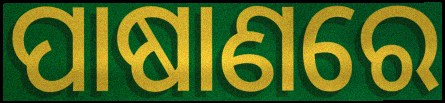
ପାଷାଣରେ